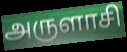
அருளாசி